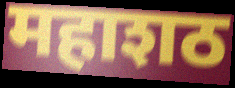
महाशठ